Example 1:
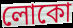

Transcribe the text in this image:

লোকো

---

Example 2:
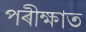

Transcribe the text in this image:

পৰীক্ষাত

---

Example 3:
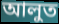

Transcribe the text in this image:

আলুত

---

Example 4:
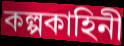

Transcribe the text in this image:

কল্পকাহিনী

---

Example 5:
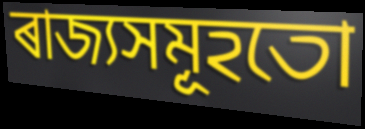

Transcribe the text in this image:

ৰাজ্যসমূহতো